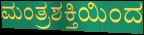
ಮಂತ್ರಶಕ್ತಿಯಿಂದ